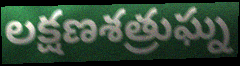
లక్షణశత్రుఘ్న